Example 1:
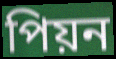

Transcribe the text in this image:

পিয়ন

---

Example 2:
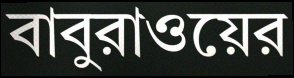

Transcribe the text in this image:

বাবুরাওয়ের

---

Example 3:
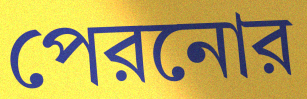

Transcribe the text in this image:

পেরনোর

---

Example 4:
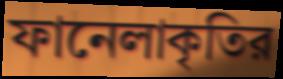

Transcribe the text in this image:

ফানেলাকৃতির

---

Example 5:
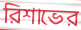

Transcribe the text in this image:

রিশাভের